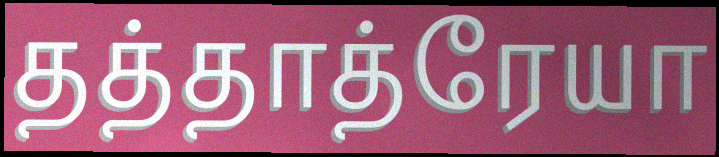
தத்தாத்ரேயா